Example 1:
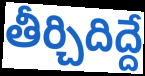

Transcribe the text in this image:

తీర్చిదిద్దే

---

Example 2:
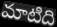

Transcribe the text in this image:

మాటిది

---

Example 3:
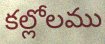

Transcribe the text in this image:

కల్లోలము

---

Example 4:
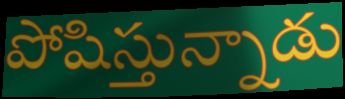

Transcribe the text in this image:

పోషిస్తున్నాడు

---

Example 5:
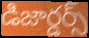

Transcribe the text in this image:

డిజార్డర్స్